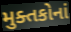
મુક્તકોનાં